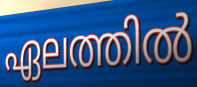
ഏലത്തിൽ